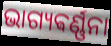
ଭାଗ୍ୟଵର୍ଣ୍ଣନା